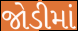
જોડીમાં